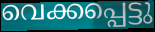
വെക്കപ്പെട്ടു